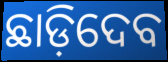
ଛାଡ଼ିଦେବ